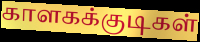
காளகக்குடிகள்